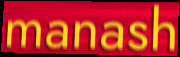
manash